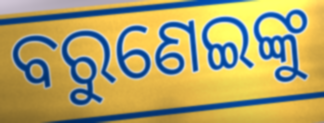
ବରୁଣେଇଙ୍କୁ